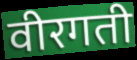
वीरगती